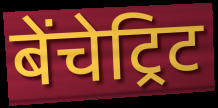
बेंचेट्रिट